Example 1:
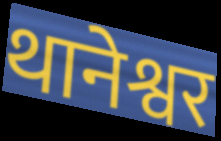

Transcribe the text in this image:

थानेश्वर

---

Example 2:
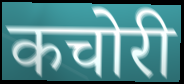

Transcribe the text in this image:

कचोरी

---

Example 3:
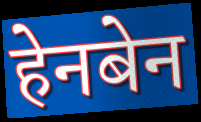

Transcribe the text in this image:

हेनबेन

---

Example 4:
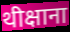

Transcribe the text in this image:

थीक्षाना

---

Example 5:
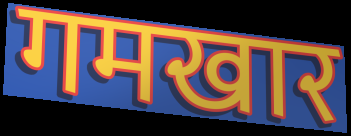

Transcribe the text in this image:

गमखार